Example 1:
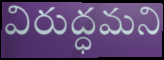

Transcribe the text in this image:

విరుద్ధమని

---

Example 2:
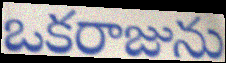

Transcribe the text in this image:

ఒకరాజును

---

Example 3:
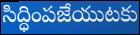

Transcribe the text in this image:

సిద్ధింపజేయుటకు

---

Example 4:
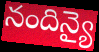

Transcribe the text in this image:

నందిన్యై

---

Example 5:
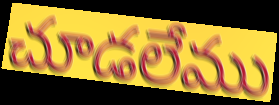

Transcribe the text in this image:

చూడలేము